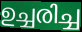
ഉച്ചരിച്ച